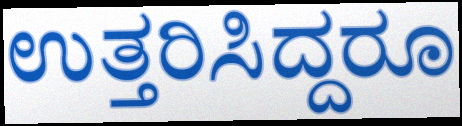
ಉತ್ತರಿಸಿದ್ದರೂ